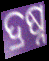
ଦ୍ରଷ୍ନ